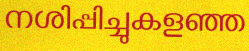
നശിപ്പിച്ചുകളഞ്ഞ